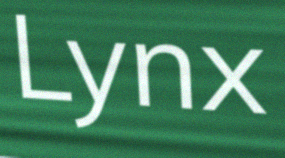
Lynx